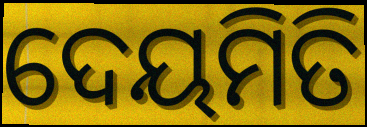
ଦେୟମିତି